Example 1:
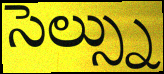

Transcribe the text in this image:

సెల్స్ను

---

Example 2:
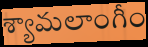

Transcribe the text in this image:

శ్యామలాంగీం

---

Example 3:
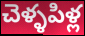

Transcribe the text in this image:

చెళ్ళపిళ్ల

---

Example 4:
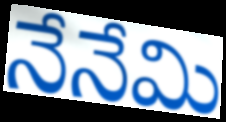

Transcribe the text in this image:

నేనేమి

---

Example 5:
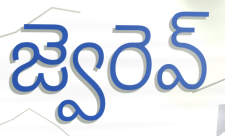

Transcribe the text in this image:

జ్వెరెవ్